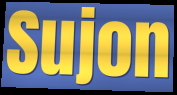
Sujon